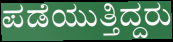
ಪಡೆಯುತ್ತಿದ್ದರು